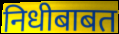
निधीबाबत